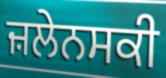
ਜ਼ਲੇਨਸਕੀ